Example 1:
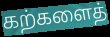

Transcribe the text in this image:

கற்களைத்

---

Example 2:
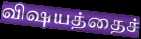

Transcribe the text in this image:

விஷயத்தைச்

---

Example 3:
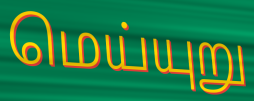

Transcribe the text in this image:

மெய்யுறு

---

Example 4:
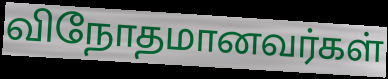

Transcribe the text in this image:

விநோதமானவர்கள்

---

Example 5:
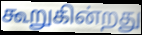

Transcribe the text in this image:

கூறுகின்றது